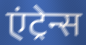
एंट्रेन्स